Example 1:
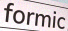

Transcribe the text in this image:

formic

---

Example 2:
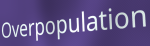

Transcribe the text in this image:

Overpopulation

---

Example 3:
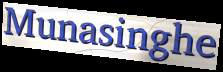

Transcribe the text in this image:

Munasinghe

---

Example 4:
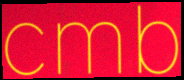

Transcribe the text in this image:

cmb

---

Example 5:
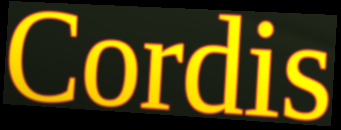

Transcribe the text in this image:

Cordis